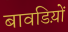
बावडिय़ों